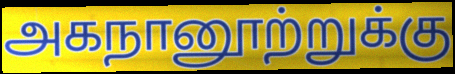
அகநானூற்றுக்கு